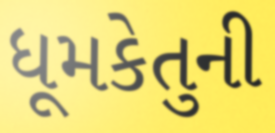
ધૂમકેતુની